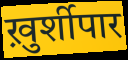
ख़ुर्शीपार